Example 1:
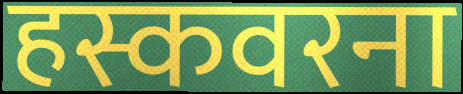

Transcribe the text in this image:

हस्कवरना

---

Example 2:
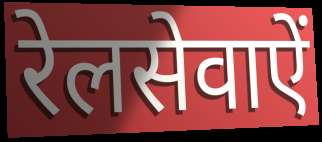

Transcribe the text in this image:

रेलसेवाऐं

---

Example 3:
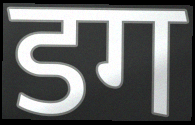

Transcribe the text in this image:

डग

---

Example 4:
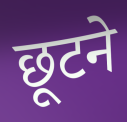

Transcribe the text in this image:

छूटने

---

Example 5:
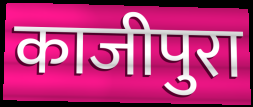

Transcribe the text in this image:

काजीपुरा